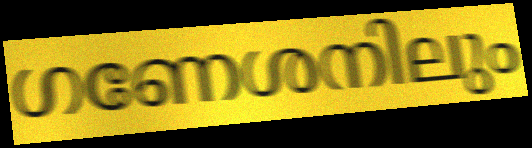
ഗണേശനിലും